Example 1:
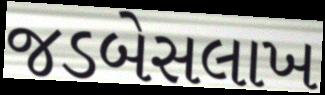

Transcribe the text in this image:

જડબેસલાખ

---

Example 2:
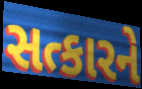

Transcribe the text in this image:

સત્કારને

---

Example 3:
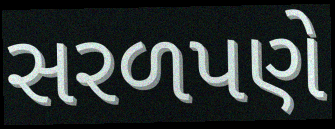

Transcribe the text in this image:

સરળપણે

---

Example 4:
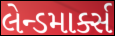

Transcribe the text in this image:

લેન્ડમાર્ક્સ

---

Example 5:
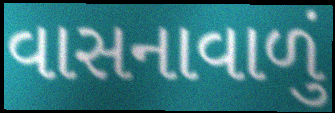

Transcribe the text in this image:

વાસનાવાળું